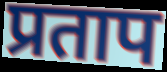
प्रताप